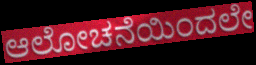
ಆಲೋಚನೆಯಿಂದಲೇ